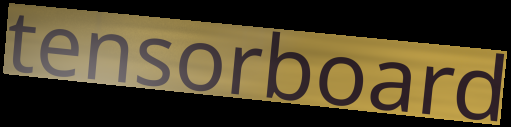
tensorboard